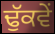
ਢੁੱਕਵੇਂ